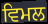
ਵਿਮਲ